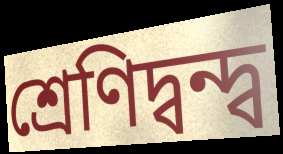
শ্রেণিদ্বন্দ্ব